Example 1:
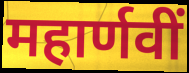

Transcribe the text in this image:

महार्णवीं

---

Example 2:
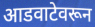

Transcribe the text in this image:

आडवाटेवरून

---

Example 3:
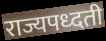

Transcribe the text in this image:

राज्यपध्दती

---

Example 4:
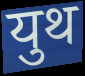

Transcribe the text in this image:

युथ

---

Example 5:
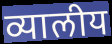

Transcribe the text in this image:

व्यालीय